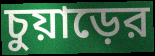
চুয়াড়ের